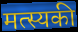
मत्स्यकी